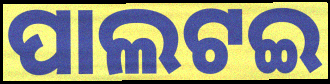
ପାଲଟଇ